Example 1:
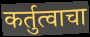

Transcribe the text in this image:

कर्तुत्वाचा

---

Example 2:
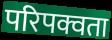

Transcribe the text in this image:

परिपक्‍वता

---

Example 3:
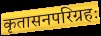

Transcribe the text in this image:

कृतासनपरिग्रहः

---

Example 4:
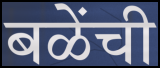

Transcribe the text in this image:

बळेंची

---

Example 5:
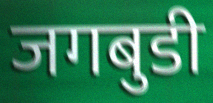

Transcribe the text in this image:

जगबुडी